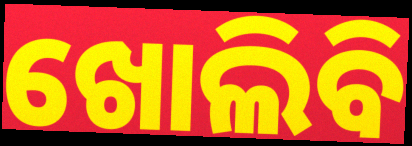
ଖୋଲିବି